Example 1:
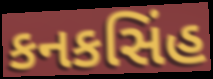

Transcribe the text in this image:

કનકસિંહ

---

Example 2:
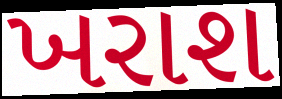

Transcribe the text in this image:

ખરાશ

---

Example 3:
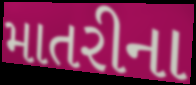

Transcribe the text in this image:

માતરીના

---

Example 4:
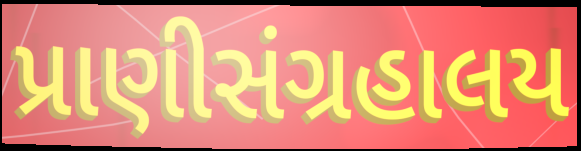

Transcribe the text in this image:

પ્રાણીસંગ્રહાલય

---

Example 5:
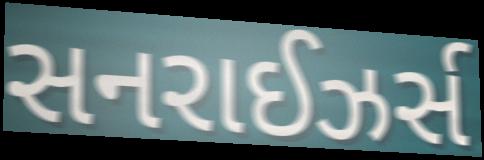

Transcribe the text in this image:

સનરાઈઝર્સ